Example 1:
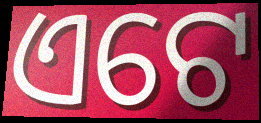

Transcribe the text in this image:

ଏଟେ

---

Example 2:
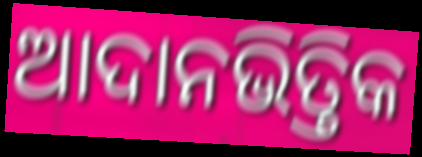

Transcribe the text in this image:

ଆଦାନଭିତ୍ତିକ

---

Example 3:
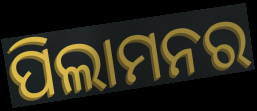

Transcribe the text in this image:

ପିଲାମନର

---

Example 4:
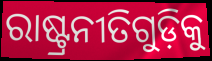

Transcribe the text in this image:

ରାଷ୍ଟ୍ରନୀତିଗୁଡ଼ିକୁ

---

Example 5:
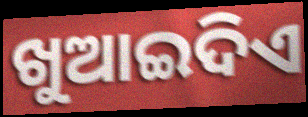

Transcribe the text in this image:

ଖୁଆଇଦିଏ